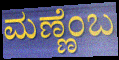
ಮಣ್ಣೆಂಬ